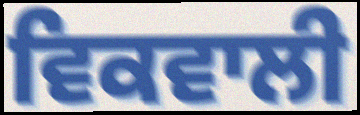
ਵਿਕਵਾਲੀ